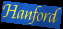
Hanford